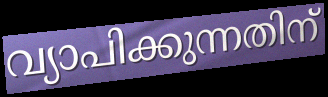
വ്യാപിക്കുന്നതിന്